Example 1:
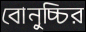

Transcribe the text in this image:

বোনুচ্চির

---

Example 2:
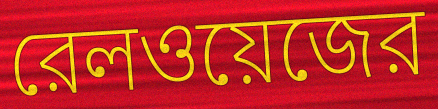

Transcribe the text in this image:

রেলওয়েজের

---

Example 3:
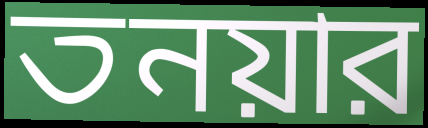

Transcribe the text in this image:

তনয়ার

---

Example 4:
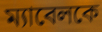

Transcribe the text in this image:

ম্যাবেলকে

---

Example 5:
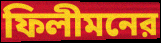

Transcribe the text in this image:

ফিলীমনের